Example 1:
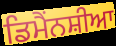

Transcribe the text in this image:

ਡਿਮੈਂਨਸ਼ੀਆ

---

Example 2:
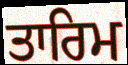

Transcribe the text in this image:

ਤਾਰਿਮ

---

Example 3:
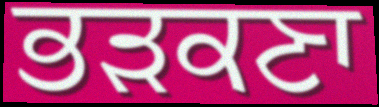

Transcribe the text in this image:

ਭੜਕਣਾ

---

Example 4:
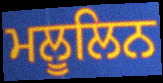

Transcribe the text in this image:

ਮਲੂਲਿਨ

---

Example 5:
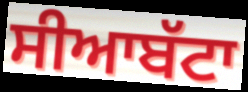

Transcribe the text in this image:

ਸੀਆਬੱਟਾ